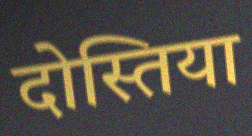
दोस्तिया